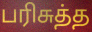
பரிசுத்த